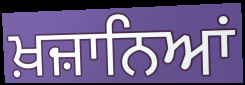
ਖ਼ਜ਼ਾਨਿਆਂ